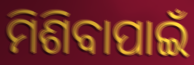
ମିଶିବାପାଇଁ